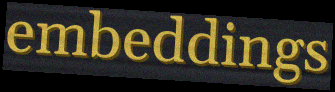
embeddings